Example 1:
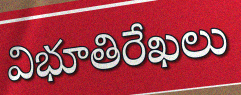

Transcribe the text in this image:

విభూతిరేఖలు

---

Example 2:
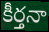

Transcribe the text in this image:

కీర్తనా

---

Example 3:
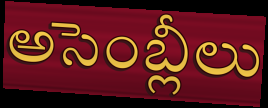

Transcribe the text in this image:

అసెంబ్లీలు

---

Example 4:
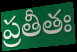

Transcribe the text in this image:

ప్రతీతః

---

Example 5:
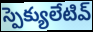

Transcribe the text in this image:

స్పెక్యులేటివ్